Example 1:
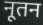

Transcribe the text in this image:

नूतन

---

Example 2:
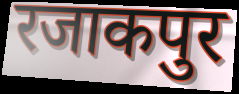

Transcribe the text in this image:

रजाकपुर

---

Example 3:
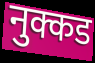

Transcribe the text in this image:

नुक्कड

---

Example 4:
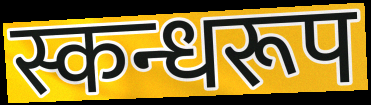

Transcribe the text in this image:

स्कन्धरूप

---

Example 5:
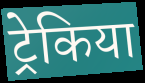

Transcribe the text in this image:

ट्रेकिया